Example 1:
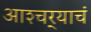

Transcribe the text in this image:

आश्चर्याचं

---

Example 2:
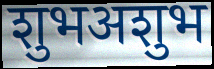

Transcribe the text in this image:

शुभअशुभ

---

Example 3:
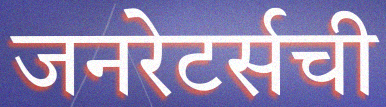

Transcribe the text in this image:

जनरेटर्सची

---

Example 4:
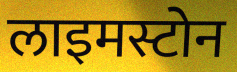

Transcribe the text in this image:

लाइमस्टोन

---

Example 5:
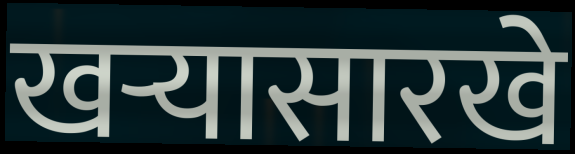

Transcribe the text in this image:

खऱ्यासारखे